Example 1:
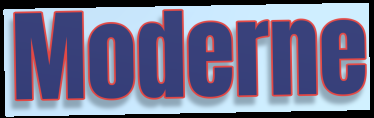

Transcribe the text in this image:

Moderne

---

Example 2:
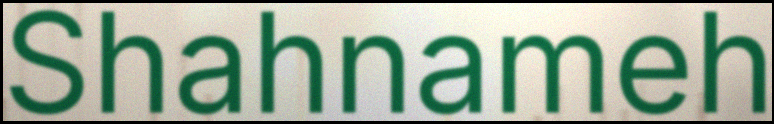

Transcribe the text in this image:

Shahnameh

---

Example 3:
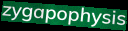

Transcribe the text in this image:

zygapophysis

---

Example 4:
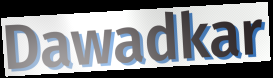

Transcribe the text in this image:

Dawadkar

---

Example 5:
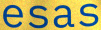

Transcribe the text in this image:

esas